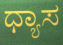
ಧ್ಯಾಸ